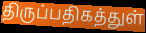
திருப்பதிகத்துள்